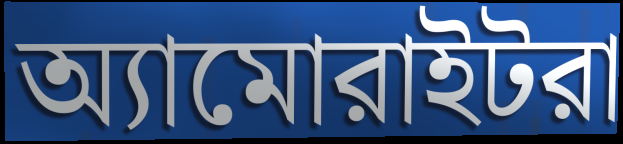
অ্যামোরাইটরা